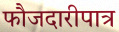
फौजदारीपात्र